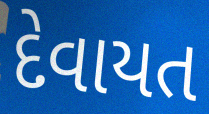
દેવાયત